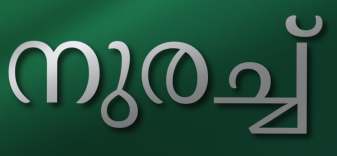
നുരച്ച്